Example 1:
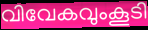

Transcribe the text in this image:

വിവേകവുംകൂടി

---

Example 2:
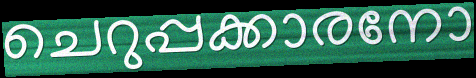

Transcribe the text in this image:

ചെറുപ്പക്കാരനോ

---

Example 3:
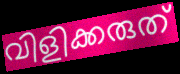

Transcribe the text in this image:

വിളിക്കരുത്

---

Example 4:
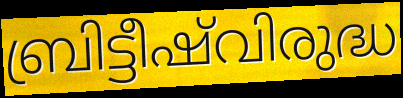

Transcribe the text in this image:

ബ്രിട്ടീഷ്‌വിരുദ്ധ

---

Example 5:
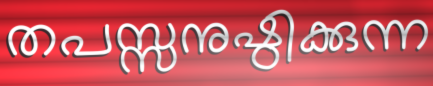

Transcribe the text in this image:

തപസ്സനുഷ്ഠിക്കുന്ന